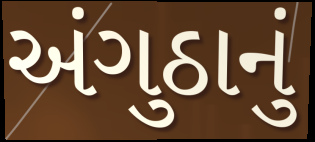
અંગુઠાનું